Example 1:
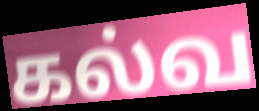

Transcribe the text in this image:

கல்வ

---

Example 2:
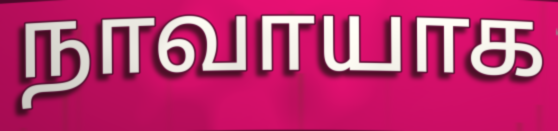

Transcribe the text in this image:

நாவாயாக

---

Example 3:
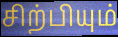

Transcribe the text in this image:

சிற்பியும்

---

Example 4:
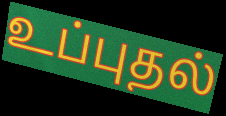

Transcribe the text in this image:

உப்புதல்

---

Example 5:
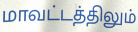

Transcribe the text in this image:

மாவட்டத்திலும்